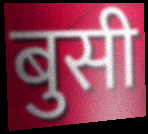
बुसी